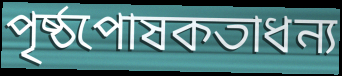
পৃষ্ঠপোষকতাধন্য